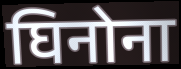
घिनोना